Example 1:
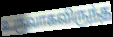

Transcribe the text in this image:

உருவாகவிருந்த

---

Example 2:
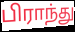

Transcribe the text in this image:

பிராந்து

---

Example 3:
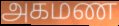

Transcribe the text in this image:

அகமண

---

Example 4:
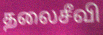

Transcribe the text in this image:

தலைசீவி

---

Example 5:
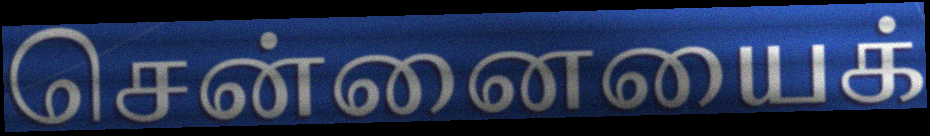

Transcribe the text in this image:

சென்னையைக்